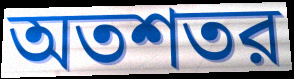
অতশতর